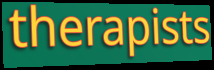
therapists